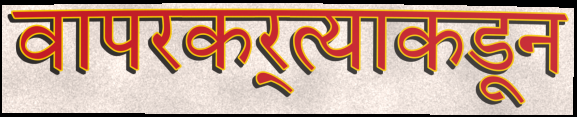
वापरकर्त्याकडून